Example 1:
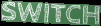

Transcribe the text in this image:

SWITCH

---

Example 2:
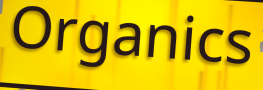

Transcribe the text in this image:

Organics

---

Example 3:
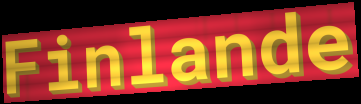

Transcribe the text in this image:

Finlande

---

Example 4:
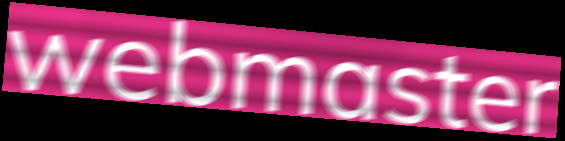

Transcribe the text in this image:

webmaster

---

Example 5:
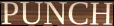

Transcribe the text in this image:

PUNCH